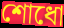
শোধো